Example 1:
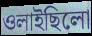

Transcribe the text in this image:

ওলাইছিলো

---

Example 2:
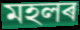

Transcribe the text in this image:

মহলৰ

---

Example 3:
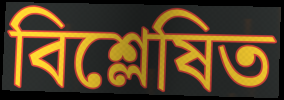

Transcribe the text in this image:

বিশ্লেষিত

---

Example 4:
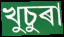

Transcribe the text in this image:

খুচুৰা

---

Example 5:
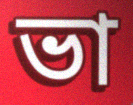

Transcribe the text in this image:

ভা